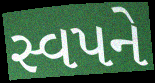
સ્વપને